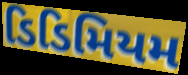
ડિડિમિયમ